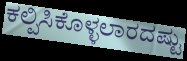
ಕಲ್ಪಿಸಿಕೊಳ್ಳಲಾರದಷ್ಟು